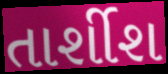
તાર્શીશ